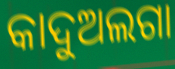
କାଦୁଅଲଗା